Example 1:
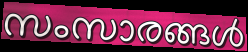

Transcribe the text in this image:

സംസാരങ്ങൾ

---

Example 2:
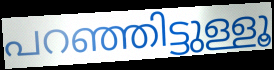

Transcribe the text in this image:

പറഞ്ഞിട്ടുള്ളൂ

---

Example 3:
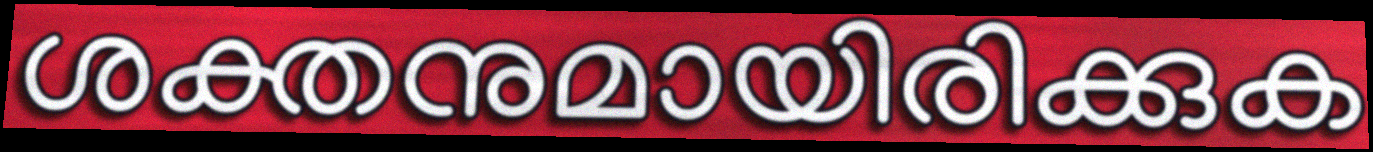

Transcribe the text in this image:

ശക്തനുമായിരിക്കുക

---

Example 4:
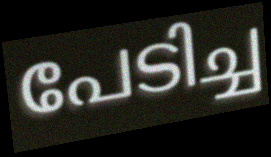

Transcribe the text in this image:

പേടിച്ച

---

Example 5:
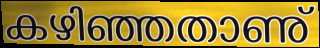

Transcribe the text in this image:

കഴിഞ്ഞതാണു്